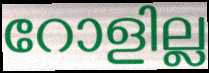
റോളില്ല